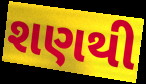
શણથી